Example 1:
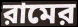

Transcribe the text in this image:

রামের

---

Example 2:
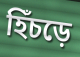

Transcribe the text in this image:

হিঁচড়ে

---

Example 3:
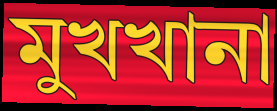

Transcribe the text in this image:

মুখখানা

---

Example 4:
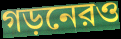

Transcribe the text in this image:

গড়নেরও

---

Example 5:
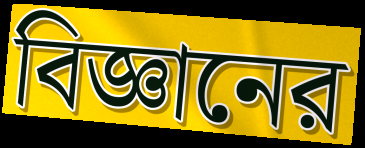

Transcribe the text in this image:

বিজ্ঞানের